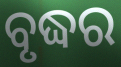
ବୃଦ୍ଧର